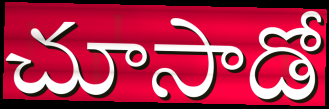
చూసాడో